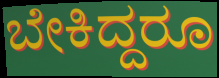
ಬೇಕಿದ್ದರೂ